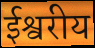
ईश्वरीय